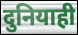
दुनियाही